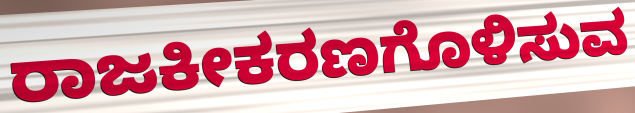
ರಾಜಕೀಕರಣಗೊಳಿಸುವ